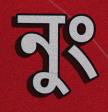
নুং